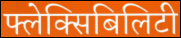
फ्लेक्सिबिलिटी